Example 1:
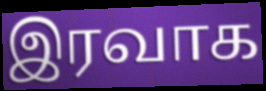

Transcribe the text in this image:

இரவாக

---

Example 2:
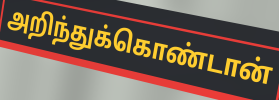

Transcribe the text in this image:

அறிந்துக்கொண்டான்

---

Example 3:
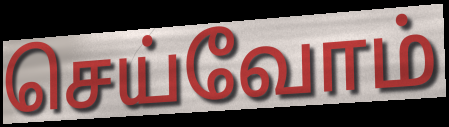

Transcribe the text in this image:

செய்வோம்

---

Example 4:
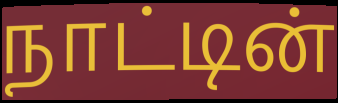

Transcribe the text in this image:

நாட்டின்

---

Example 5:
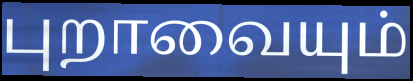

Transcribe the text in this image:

புறாவையும்